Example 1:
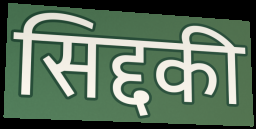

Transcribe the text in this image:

सिद्दकी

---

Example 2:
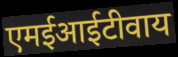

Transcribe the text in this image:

एमईआईटीवाय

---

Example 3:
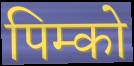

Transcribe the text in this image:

पिम्को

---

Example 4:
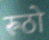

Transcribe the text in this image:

रूठो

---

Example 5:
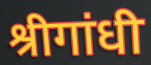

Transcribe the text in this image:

श्रीगांधी